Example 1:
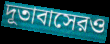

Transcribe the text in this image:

দূতাবাসেরও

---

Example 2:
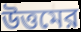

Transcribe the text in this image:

উত্তমের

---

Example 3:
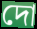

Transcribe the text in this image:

দো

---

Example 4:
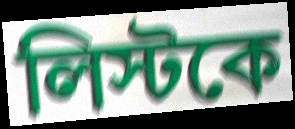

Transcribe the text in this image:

লিস্টকে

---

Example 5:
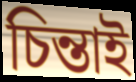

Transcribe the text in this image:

চিন্তাই